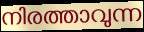
നിരത്താവുന്ന